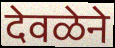
देवळेने